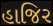
હાજિર